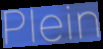
Plein